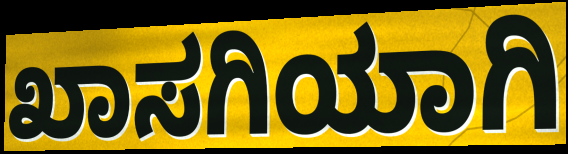
ಖಾಸಗಿಯಾಗಿ